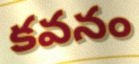
కవనం